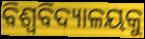
ବିଶ୍ବବିଦ୍ୟାଳୟକୁ